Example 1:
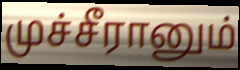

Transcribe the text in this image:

முச்சீரானும்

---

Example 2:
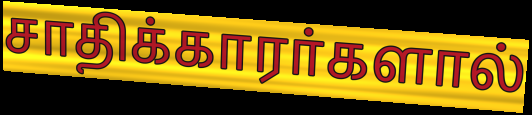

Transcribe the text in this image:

சாதிக்காரர்களால்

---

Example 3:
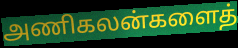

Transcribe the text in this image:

அணிகலன்களைத்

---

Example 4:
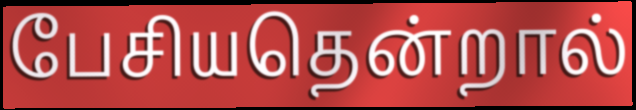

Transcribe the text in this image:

பேசியதென்றால்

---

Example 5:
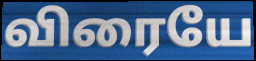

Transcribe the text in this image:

விரையே